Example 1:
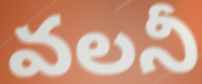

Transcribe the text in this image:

వలనీ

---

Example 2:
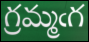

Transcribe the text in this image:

గ్రమ్మఁగ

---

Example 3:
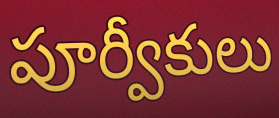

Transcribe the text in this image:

పూర్వీకులు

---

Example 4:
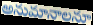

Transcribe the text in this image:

అనుమానాలనూ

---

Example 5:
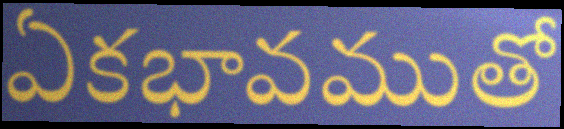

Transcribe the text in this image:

ఏకభావముతో